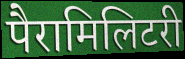
पैरामिलिटरी